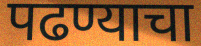
पढण्याचा